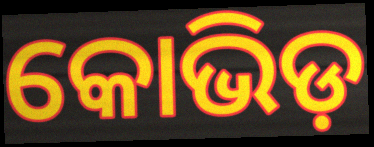
କୋଭିଡ଼